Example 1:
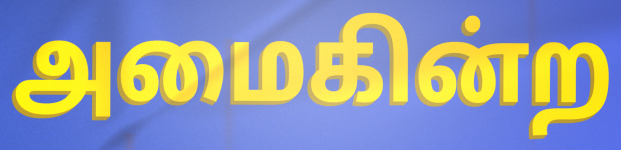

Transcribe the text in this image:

அமைகின்ற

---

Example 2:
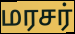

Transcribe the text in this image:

மரசர்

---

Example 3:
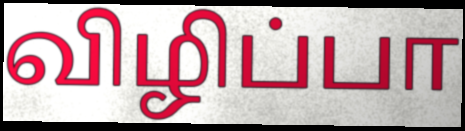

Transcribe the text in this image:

விழிப்பா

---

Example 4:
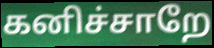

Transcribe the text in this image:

கனிச்சாறே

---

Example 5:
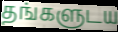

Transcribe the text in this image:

தங்களுடய